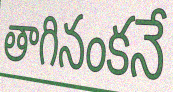
తాగినంకనే